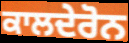
ਕਾਲਦੇਰੋਨ